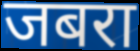
जबरा